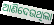
ଆଣିଦେଉଥିଲା